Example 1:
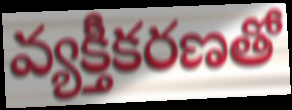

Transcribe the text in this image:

వ్యక్తీకరణతో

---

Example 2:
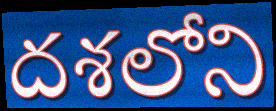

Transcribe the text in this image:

దశలోని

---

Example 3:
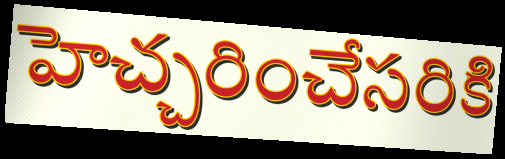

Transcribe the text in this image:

హెచ్చరించేసరికి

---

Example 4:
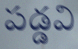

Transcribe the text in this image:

పడ్డవి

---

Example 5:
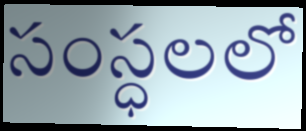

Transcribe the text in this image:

సంస్ధలలో